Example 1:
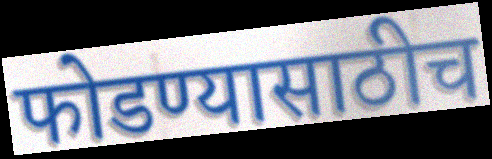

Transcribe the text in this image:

फोडण्यासाठीच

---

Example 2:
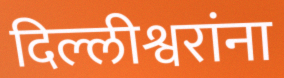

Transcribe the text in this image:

दिल्लीश्वरांना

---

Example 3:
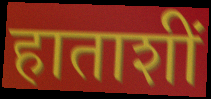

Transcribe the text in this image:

हाताशीं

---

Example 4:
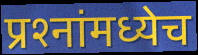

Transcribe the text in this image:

प्रश्नांमध्येच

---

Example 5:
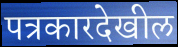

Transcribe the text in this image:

पत्रकारदेखील